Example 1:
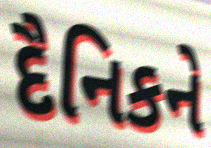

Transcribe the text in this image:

દૈનિકને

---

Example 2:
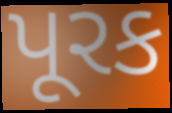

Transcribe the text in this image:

પૂરક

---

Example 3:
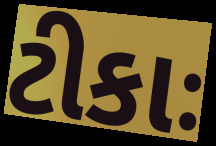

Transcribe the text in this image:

ટીકાઃ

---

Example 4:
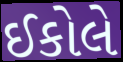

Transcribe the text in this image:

ઈકોલે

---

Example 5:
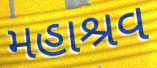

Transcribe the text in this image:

મહાશ્રવ